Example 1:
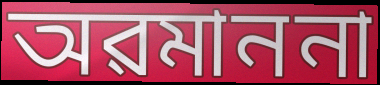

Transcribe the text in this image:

অৱমাননা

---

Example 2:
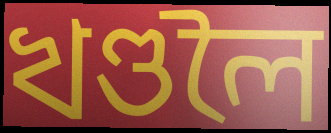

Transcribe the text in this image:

খণ্ডলৈ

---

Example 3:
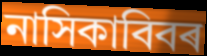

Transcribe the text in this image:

নাসিকাবিবৰ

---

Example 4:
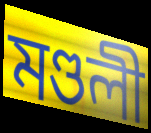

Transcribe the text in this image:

মণ্ডলী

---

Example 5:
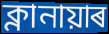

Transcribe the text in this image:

ক্নানায়াৰ